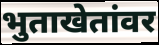
भुताखेतांवर